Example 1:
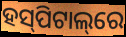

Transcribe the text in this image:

ହସ୍‌ପିଟାଲ୍‌ରେ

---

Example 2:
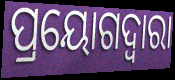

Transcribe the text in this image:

ପ୍ରୟୋଗଦ୍ୱାରା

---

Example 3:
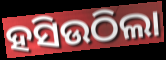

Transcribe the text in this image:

ହସିଉଠିଲା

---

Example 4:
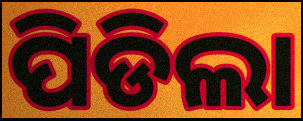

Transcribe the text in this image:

ପିଡିଲା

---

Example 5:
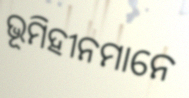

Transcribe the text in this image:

ଭୂମିହୀନମାନେ